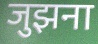
जुझना